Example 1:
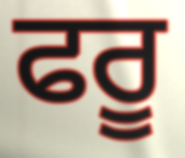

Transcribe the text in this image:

ਫਰੂ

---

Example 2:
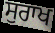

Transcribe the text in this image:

ਸੁਰਾਖ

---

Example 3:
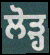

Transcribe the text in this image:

ਲੋੜ੍ਹ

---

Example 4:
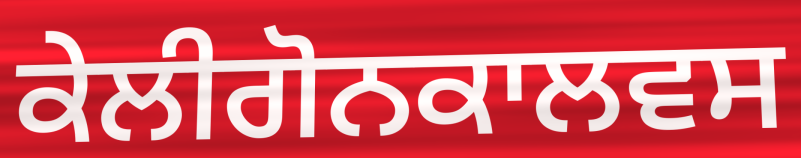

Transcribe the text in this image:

ਕੇਲੀਗੋਨਕਾਲਵਸ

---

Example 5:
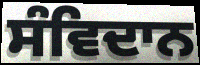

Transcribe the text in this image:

ਸੰਵਿਦਾਨ